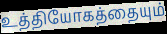
உத்தியோகத்தையும்